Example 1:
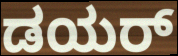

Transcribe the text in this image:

ಡಯರ್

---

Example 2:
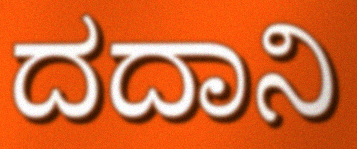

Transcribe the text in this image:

ದದಾನಿ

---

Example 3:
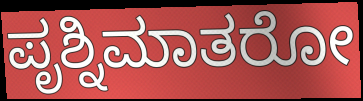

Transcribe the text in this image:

ಪೃಶ್ನಿಮಾತರೋ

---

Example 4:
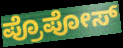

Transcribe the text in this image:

ಪ್ರೊಪೋಸ್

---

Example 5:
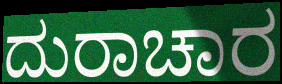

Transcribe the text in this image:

ದುರಾಚಾರ